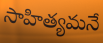
సాహిత్యమనే